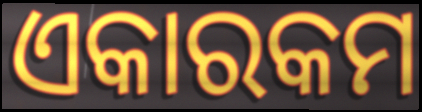
ଏକାରକମ